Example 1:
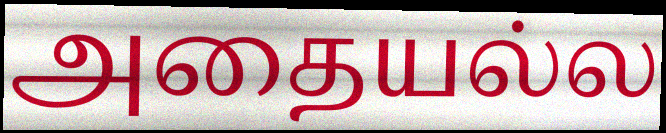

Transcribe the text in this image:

அதையல்ல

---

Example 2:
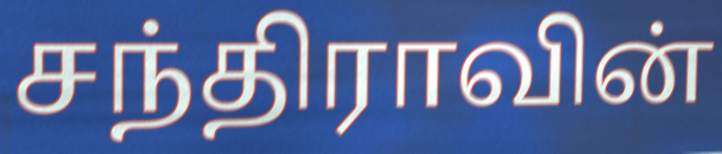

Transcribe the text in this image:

சந்திராவின்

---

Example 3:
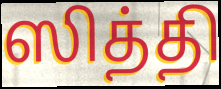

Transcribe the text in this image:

ஸித்தி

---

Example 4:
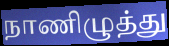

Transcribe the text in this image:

நாணிழுத்து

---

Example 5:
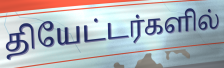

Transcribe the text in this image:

தியேட்டர்களில்